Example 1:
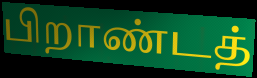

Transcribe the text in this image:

பிறாண்டத்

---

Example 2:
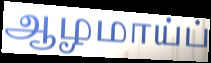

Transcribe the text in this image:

ஆழமாய்ப்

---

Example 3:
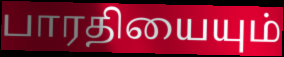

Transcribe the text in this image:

பாரதியையும்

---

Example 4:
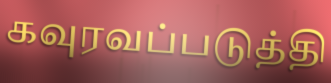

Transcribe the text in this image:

கவுரவப்படுத்தி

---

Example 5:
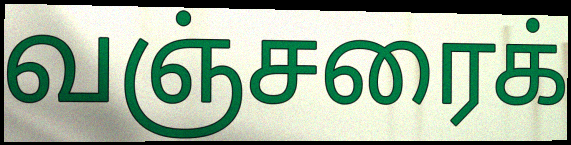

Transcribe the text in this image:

வஞ்சரைக்